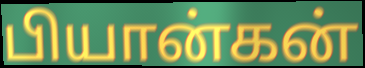
பியான்கன்